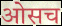
ओसच